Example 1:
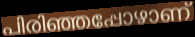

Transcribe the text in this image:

പിരിഞ്ഞപ്പോഴാണ്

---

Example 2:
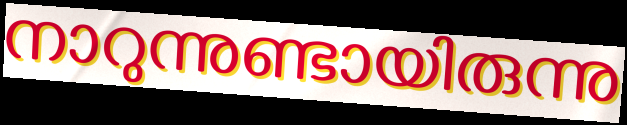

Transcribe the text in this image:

നാറുന്നുണ്ടായിരുന്നു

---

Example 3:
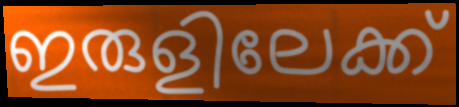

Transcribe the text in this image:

ഇരുളിലേക്ക്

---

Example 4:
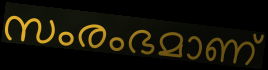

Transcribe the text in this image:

സംരംഭമാണ്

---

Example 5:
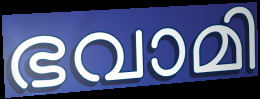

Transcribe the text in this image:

ഭവാമി